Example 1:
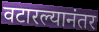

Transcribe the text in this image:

वटारल्यानंतर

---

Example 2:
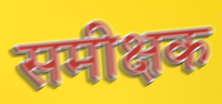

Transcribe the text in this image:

समीक्षक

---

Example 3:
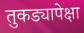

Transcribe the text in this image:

तुकड्यापेक्षा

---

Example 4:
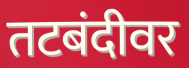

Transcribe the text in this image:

तटबंदीवर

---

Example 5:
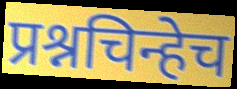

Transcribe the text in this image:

प्रश्नचिन्हेच